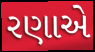
રણાએ